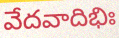
వేదవాదిభిః